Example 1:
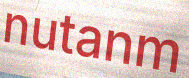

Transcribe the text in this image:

nutanm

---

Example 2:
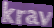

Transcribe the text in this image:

krav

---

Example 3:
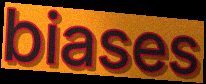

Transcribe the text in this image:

biases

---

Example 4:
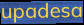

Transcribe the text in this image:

upadesa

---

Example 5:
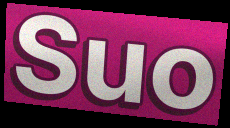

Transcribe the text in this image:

Suo